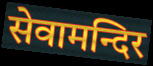
सेवामन्दिर